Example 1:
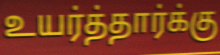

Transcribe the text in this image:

உயர்த்தார்க்கு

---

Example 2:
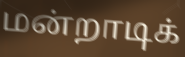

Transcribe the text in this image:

மன்றாடிக்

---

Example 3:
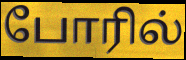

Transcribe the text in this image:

போரில்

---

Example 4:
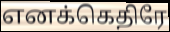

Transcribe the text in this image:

எனக்கெதிரே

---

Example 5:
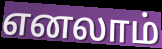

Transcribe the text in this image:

எனலாம்